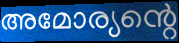
അമോര്യന്റെ